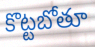
కొట్టబోతూ